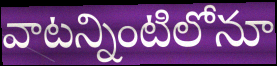
వాటన్నింటిలోనూ